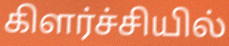
கிளர்ச்சியில்